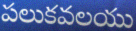
పలుకవలయు